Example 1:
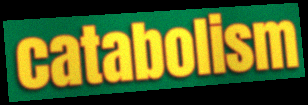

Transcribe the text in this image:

catabolism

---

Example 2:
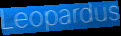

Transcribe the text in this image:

Leopardus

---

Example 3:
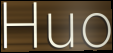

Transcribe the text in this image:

Huo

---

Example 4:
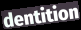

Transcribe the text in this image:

dentition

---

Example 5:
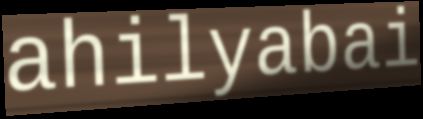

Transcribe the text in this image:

ahilyabai